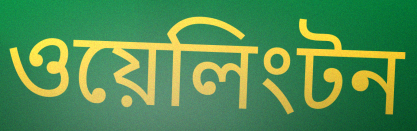
ওয়েলিংটন